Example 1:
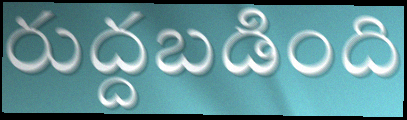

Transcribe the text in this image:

రుద్దబడింది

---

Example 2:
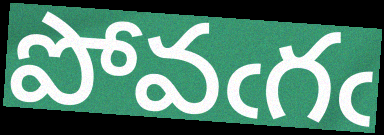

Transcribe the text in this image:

పోవఁగఁ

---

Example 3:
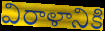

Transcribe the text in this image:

విరాళానికి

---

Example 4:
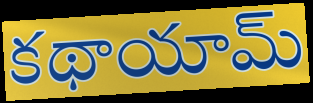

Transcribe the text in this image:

కథాయామ్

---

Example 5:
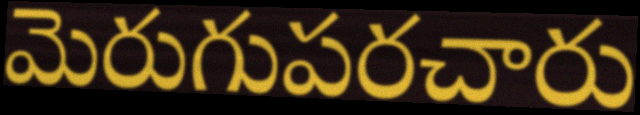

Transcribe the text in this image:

మెరుగుపరచారు